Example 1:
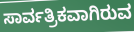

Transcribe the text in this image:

ಸಾರ್ವತ್ರಿಕವಾಗಿರುವ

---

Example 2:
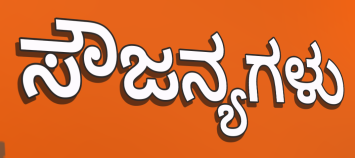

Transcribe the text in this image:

ಸೌಜನ್ಯಗಳು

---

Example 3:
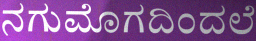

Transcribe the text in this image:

ನಗುಮೊಗದಿಂದಲೆ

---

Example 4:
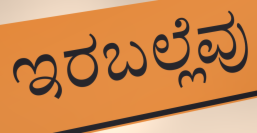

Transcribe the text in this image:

ಇರಬಲ್ಲೆವು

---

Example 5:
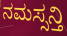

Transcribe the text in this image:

ನಮಸ್ಸನ್ತಿ